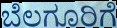
ಬೆಲಗೂರಿಗೆ